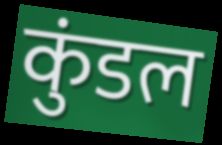
कुंडल